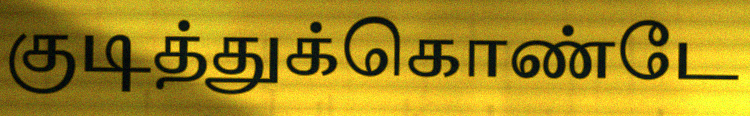
குடித்துக்கொண்டே